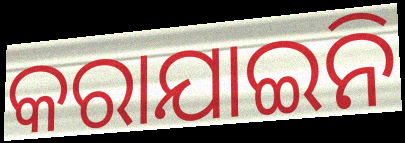
କରାଯାଇନି